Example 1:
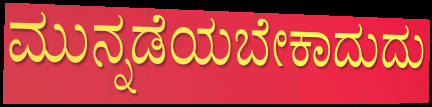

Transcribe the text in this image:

ಮುನ್ನಡೆಯಬೇಕಾದುದು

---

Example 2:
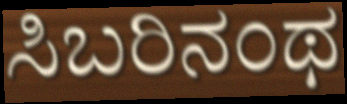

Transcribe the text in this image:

ಸಿಬರಿನಂಥ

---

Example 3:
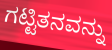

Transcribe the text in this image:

ಗಟ್ಟಿತನವನ್ನು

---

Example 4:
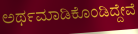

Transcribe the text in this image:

ಅರ್ಥಮಾಡಿಕೊಂಡಿದ್ದೇವೆ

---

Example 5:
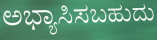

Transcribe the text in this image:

ಅಭ್ಯಾಸಿಸಬಹುದು